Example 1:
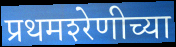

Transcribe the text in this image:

प्रथमश्रेणीच्या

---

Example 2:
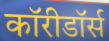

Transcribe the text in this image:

कॉरीडॉर्स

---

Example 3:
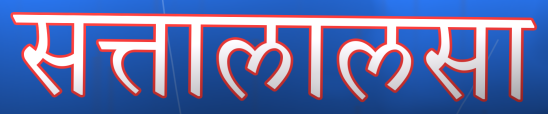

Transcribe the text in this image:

सत्तालालसा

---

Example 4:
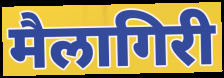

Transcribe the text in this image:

मैलागिरी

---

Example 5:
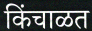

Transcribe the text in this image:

किंचाळत